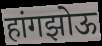
हांगझोऊ